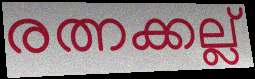
രത്നക്കല്ല്